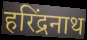
हरिंद्रनाथ